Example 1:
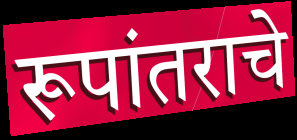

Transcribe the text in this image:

रूपांतराचे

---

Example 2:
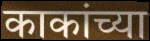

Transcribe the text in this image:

काकांच्या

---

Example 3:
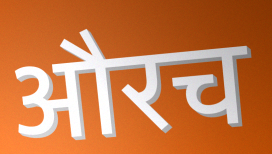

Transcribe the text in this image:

औरच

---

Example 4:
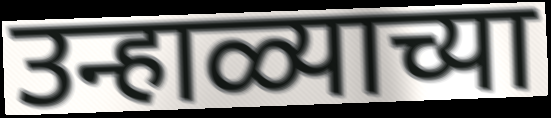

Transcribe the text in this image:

उन्हाळ्याच्या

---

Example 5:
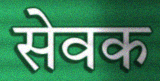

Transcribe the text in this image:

सेवक